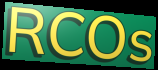
RCOs